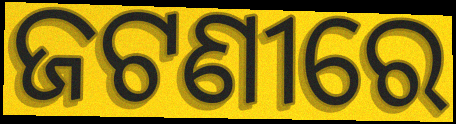
ଜଟଣୀରେ